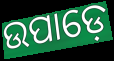
ଉପାଡ଼େ